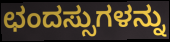
ಛಂದಸ್ಸುಗಳನ್ನು